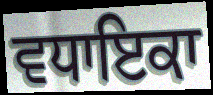
ਵਧਾਇਕਾ